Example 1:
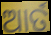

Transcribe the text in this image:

ଆର୍ତ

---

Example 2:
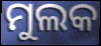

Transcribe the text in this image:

ମୁଲକ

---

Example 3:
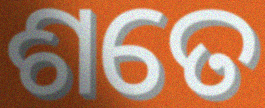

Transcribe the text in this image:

ଶତେ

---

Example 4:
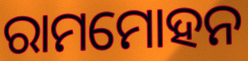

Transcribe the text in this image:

ରାମମୋହନ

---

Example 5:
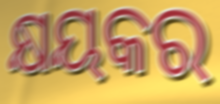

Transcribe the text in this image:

କ୍ଷୟକର